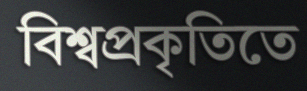
বিশ্বপ্রকৃতিতে